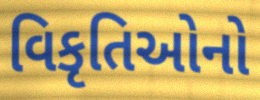
વિકૃતિઓનો